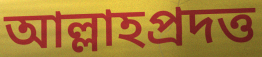
আল্লাহপ্রদত্ত